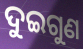
ଦୁଇଗୁଣ